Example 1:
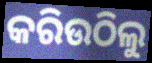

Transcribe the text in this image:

କରିଉଠିଲୁ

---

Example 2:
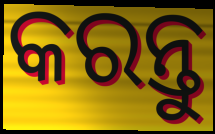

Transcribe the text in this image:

କରନ୍ତୁ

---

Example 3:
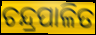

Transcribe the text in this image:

ଚନ୍ଦ୍ରପାଳିତ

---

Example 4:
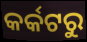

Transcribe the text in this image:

କର୍କଟରୁ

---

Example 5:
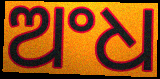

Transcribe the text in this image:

ଅଂଧ